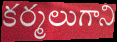
కర్మలుగాని